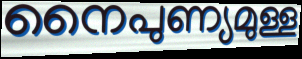
നൈപുണ്യമുള്ള